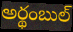
అర్థంబుల్